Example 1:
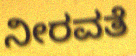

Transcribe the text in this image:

ನೀರವತೆ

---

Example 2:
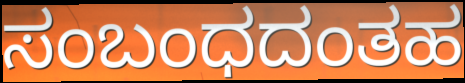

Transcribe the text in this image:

ಸಂಬಂಧದಂತಹ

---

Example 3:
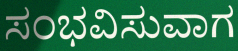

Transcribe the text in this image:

ಸಂಭವಿಸುವಾಗ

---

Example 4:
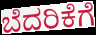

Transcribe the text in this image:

ಬೆದರಿಕೆಗೆ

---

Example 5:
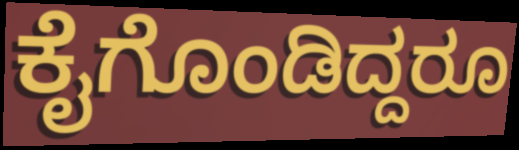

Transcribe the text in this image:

ಕೈಗೊಂಡಿದ್ದರೂ